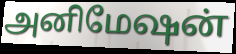
அனிமேஷன்